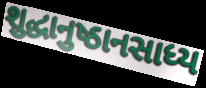
શુદ્ધાનુષ્ઠાનસાધ્ય